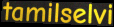
tamilselvi